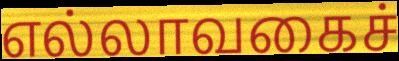
எல்லாவகைச்